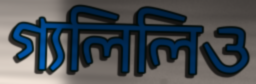
গ্যলিলিও